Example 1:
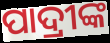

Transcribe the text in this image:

ପାଦ୍ରୀଙ୍କ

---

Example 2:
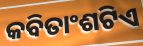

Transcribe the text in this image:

କବିତାଂଶଟିଏ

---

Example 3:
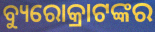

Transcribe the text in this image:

ବ୍ୟୁରୋକ୍ରାଟଙ୍କର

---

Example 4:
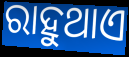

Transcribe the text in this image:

ରାହୁଥାଏ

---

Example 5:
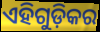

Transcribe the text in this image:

ଏହିଗୁଡ଼ିକର